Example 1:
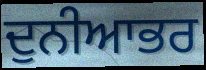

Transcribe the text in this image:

ਦੁਨੀਆਭਰ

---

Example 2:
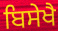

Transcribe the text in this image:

ਬਿਸੇਖੈ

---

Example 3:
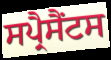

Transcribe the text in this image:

ਸਪ੍ਰੈਸੈਂਟਸ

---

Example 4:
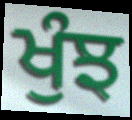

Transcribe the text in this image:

ਖੁੰਝ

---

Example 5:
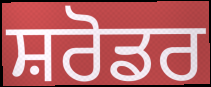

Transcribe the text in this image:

ਸ਼ਰੋਡਰ